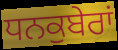
ਧਨਕੁਬੇਰਾਂ